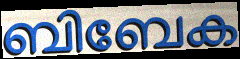
ബിബേക